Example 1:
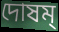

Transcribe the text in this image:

দোষম্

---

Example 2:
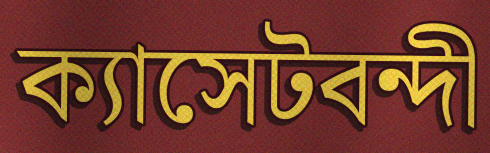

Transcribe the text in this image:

ক্যাসেটবন্দী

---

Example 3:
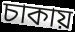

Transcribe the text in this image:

চাকায়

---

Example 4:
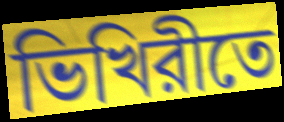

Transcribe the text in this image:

ভিখিরীতে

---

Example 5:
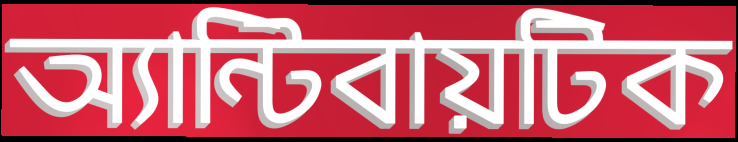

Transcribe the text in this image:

অ্যান্টিবায়টিক